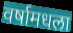
वर्षामधला